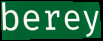
berey